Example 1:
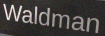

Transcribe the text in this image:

Waldman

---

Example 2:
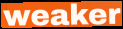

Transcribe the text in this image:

weaker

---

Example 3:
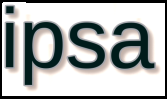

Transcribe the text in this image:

ipsa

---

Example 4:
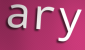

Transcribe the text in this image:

ary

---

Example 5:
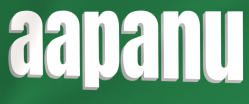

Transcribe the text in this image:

aapanu